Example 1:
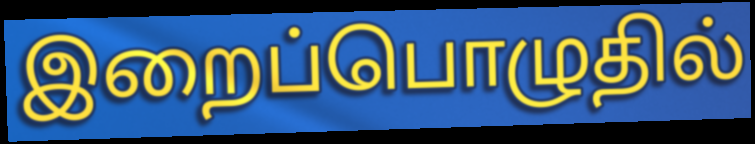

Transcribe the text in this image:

இறைப்பொழுதில்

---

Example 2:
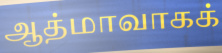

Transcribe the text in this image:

ஆத்மாவாகக்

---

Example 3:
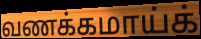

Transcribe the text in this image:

வணக்கமாய்க்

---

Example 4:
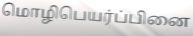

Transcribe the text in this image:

மொழிபெயர்ப்பினை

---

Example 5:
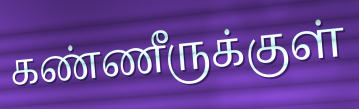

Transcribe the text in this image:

கண்ணீருக்குள்